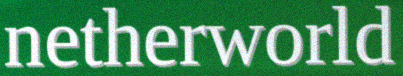
netherworld